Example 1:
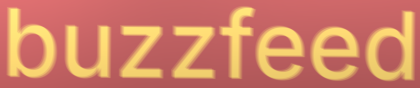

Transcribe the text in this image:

buzzfeed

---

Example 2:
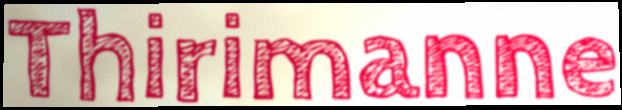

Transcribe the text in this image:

Thirimanne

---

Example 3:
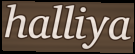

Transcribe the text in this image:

halliya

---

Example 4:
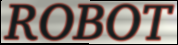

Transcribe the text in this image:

ROBOT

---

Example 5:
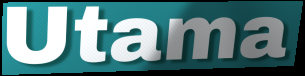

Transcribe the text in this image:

Utama